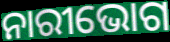
ନାରୀଭୋଗ